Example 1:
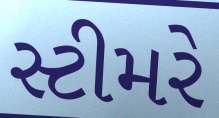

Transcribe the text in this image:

સ્ટીમરે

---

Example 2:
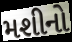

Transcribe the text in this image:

મશીનો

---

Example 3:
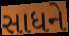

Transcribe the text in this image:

સાધને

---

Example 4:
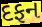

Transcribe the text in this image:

દફન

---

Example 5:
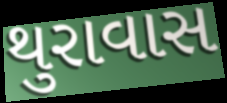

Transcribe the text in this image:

થુરાવાસ